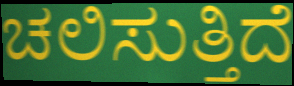
ಚಲಿಸುತ್ತಿದೆ